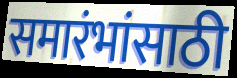
समारंभांसाठी